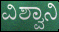
ವಿಶ್ವಾನಿ